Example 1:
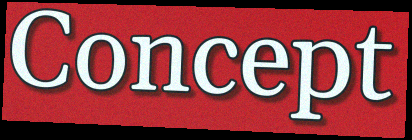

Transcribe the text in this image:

Concept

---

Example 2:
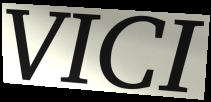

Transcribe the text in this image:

VICI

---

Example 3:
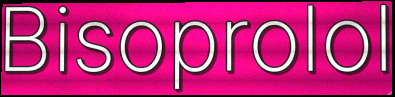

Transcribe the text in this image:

Bisoprolol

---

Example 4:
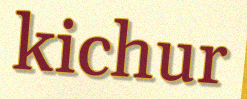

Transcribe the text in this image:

kichur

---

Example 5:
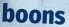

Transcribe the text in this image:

boons